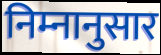
निम्‍नानुसार